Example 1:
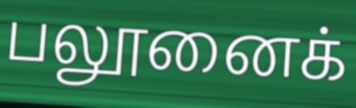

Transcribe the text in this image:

பலூனைக்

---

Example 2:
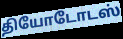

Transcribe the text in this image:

தியோடோடஸ்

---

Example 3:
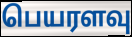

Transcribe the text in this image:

பெயரளவு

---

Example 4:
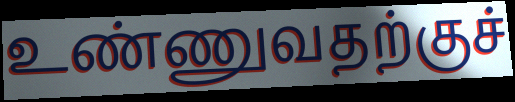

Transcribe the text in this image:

உண்ணுவதற்குச்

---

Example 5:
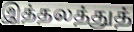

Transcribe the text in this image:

இத்தலத்துத்